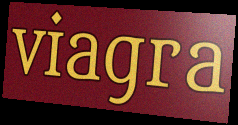
viagra